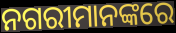
ନଗରୀମାନଙ୍କରେ